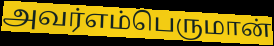
அவர்எம்பெருமான்